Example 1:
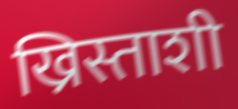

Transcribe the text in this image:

ख्रिस्ताशी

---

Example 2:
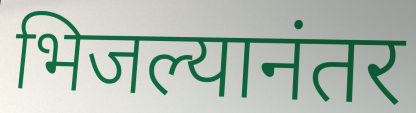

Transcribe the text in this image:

भिजल्यानंतर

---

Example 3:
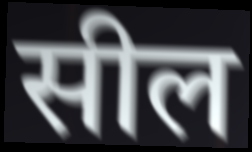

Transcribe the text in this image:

सील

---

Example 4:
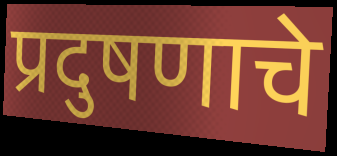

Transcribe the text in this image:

प्रदुषणाचे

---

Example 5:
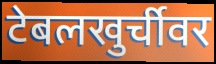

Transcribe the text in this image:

टेबलखुर्चीवर